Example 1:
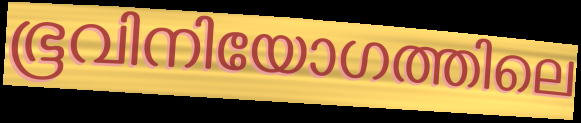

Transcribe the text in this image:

ഭൂവിനിയോഗത്തിലെ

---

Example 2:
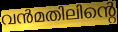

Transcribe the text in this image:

വൻമതിലിന്റെ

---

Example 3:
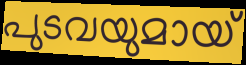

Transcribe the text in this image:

പുടവയുമായ്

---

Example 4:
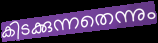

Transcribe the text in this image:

കിടക്കുന്നതെന്നും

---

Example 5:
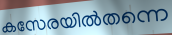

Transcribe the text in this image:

കസേരയിൽതന്നെ